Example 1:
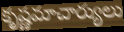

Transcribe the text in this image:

కృష్ణమాచార్యులు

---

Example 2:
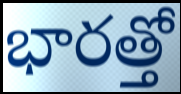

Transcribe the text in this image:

భారత్తో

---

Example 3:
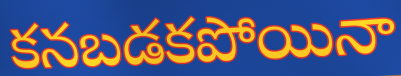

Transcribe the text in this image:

కనబడకపోయినా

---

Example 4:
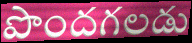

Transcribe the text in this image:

పొందగలడు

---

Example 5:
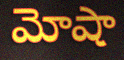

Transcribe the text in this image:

మోషా